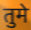
तुमे